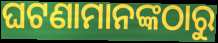
ଘଟଣାମାନଙ୍କଠାରୁ